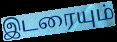
இடரையும்